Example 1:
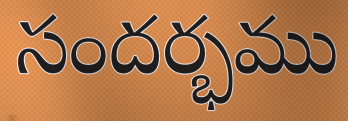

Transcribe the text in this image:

సందర్భము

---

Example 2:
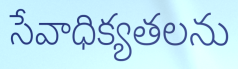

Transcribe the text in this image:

సేవాధిక్యతలను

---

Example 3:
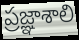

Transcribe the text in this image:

ప్రజ్ఞాశాలి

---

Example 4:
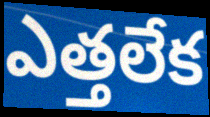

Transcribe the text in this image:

ఎత్తలేక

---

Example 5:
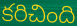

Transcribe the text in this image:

కరిచింది